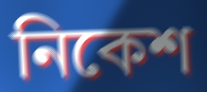
নিকেশ